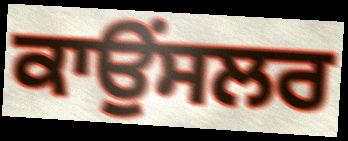
ਕਾਉਂਸਲਰ